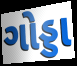
ગોડ્ડા